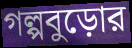
গল্পবুড়োর